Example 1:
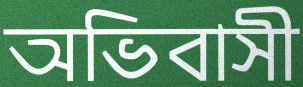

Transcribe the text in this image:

অভিবাসী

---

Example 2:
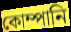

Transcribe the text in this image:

কোম্পানি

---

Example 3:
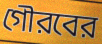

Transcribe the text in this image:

গৌরবের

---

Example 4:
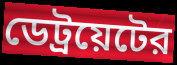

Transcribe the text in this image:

ডেট্রয়েটের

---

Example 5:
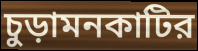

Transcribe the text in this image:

চুড়ামনকাটির